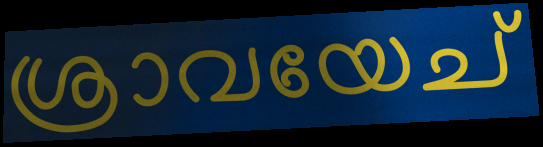
ശ്രാവയേച്